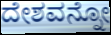
ದೇಶವನ್ನೋ